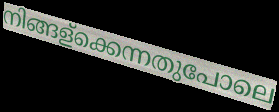
നിങ്ങള്ക്കെന്നതുപോലെ